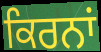
ਕਿਰਨਾਂ